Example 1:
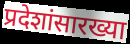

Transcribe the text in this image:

प्रदेशांसारख्या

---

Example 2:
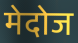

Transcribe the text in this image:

मेदोज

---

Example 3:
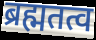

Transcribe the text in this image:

ब्रह्मतत्व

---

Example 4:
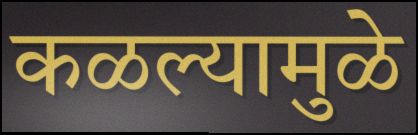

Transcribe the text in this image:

कळल्यामुळे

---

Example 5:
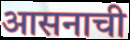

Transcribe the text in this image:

आसनाची